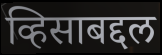
व्हिसाबद्दल